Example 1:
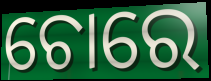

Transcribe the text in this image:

ଚୋରେ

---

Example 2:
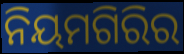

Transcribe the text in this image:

ନିୟମଗିରିର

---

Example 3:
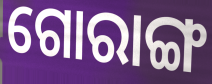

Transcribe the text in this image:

ଗୋରାଙ୍ଗ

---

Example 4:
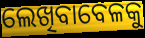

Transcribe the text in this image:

ଲେଖିବାବେଳକୁ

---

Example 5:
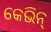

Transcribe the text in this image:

କେଭିନ୍